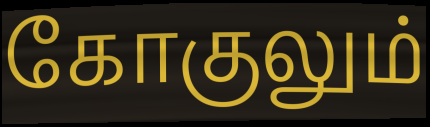
கோகுலும்